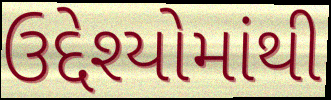
ઉદ્દેશ્યોમાંથી